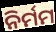
ନିର୍ମମ